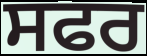
ਸਫਰ